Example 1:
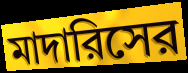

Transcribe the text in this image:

মাদারিসের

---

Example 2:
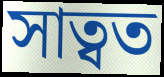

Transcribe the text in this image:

সাত্বত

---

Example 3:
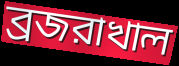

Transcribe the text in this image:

ব্রজরাখাল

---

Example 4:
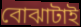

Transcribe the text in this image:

বোঝাটাই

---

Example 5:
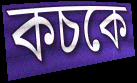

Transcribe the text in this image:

কচকে